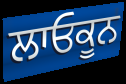
ਲਾਓਕੂਨ